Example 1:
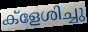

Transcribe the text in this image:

ക്ളേശിച്ചു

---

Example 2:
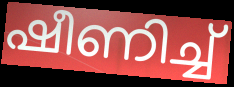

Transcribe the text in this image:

ഷീണിച്ച്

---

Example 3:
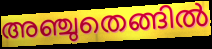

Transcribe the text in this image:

അഞ്ചുതെങ്ങിൽ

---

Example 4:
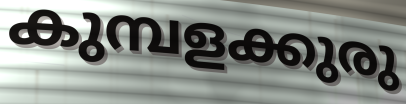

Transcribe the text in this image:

കുമ്പളക്കുരു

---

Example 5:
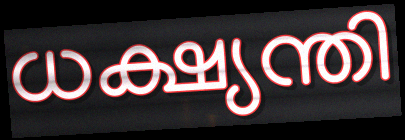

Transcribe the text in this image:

ധക്ഷ്യന്തി